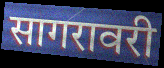
सागरावरी